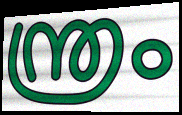
ന്ത്രം